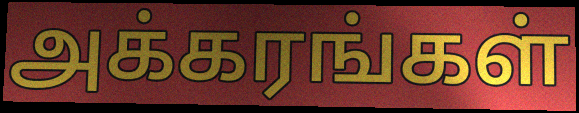
அக்கரங்கள்